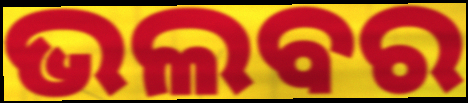
ଭଲବର